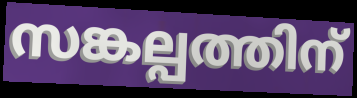
സങ്കല്പത്തിന്